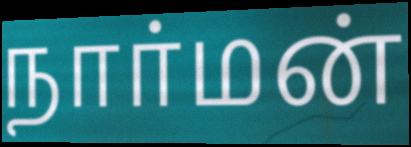
நார்மன்